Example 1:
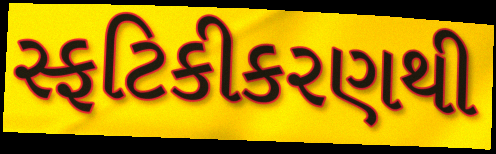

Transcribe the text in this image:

સ્ફટિકીકરણથી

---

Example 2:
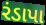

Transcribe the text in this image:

રંડાપા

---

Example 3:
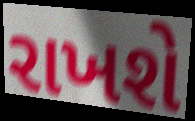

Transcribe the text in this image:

રાખશે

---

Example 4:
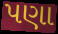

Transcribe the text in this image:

પણા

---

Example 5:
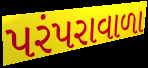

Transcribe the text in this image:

પરંપરાવાળા